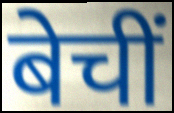
बेचीं